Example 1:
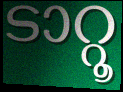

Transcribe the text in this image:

ടാറ്റൂ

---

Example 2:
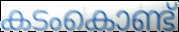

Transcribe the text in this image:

കടംകൊണ്ട്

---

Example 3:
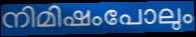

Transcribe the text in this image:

നിമിഷംപോലും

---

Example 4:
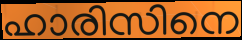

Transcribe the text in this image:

ഹാരിസിനെ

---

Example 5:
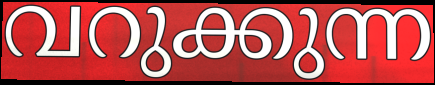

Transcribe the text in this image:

വറുക്കുന്ന